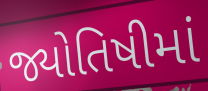
જ્યોતિષીમાં